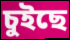
চুইছে